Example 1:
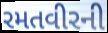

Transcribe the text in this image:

રમતવીરની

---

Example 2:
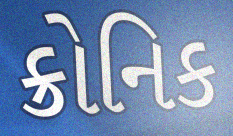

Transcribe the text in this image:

ક્રોનિક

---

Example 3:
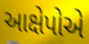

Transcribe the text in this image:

આક્ષેપોએ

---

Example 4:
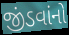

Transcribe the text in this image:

જીંડવાંનો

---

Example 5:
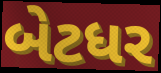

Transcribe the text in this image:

બેટધર